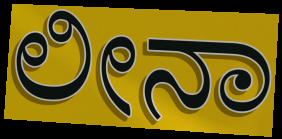
ಲೀನಾ